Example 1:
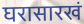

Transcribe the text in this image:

घरासारखं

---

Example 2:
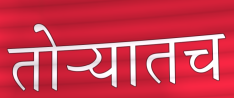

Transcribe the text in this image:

तोऱ्यातच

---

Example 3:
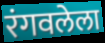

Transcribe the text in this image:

रंगवलेला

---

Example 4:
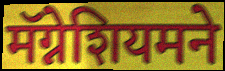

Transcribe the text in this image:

मॅग्नेशियमने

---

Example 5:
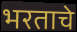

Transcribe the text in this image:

भरताचे